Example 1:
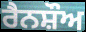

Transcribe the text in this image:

ਰੈਨਸ਼ੌਅ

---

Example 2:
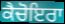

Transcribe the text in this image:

ਕੈਚੋਇਰਾ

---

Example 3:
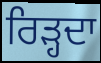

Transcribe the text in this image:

ਰਿੜ੍ਹਦਾ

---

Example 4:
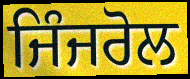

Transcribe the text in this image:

ਜਿੰਜਰੋਲ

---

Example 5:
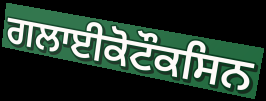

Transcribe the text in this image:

ਗਲਾਈਕੋਟੌਕਸਿਨ